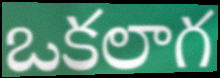
ఒకలాగ